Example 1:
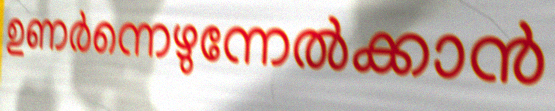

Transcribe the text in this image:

ഉണർന്നെഴുന്നേൽക്കാൻ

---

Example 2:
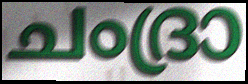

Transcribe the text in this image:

ചംദ്രാ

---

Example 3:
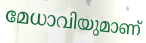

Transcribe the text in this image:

മേധാവിയുമാണ്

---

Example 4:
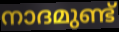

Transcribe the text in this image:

നാദമുണ്ട്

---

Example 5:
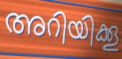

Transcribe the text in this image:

അറിയിക്കൂ